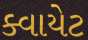
ક્વાયેટ